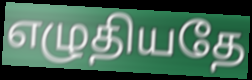
எழுதியதே